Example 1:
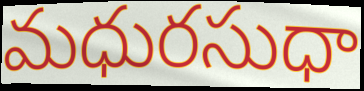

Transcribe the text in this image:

మధురసుధా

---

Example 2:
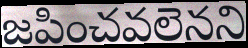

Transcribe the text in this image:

జపించవలెనని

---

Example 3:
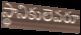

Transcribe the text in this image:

స్థానికులెవరూ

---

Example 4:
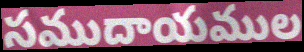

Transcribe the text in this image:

సముదాయముల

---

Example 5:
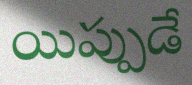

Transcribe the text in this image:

యిప్పుడే